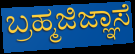
ಬ್ರಹ್ಮಜಿಜ್ಞಾಸೆ